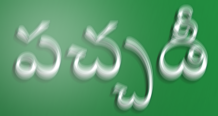
పచ్చడీ